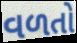
વળતો